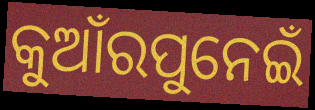
କୁଆଁରପୁନେଇଁ